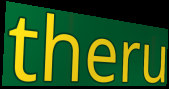
theru